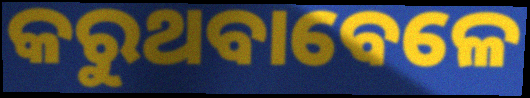
କରୁଥବାବେଳେ